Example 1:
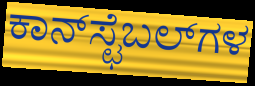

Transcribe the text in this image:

ಕಾನ್‌ಸ್ಟೆಬಲ್‌ಗಳ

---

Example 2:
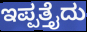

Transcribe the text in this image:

ಇಪ್ಪತ್ತೈದು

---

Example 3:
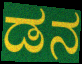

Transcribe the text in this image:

ಡನ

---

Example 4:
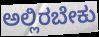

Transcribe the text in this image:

ಅಲ್ಲಿರಬೇಕು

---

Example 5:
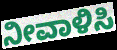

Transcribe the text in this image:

ನೀವಾಳಿಸಿ